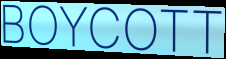
BOYCOTT